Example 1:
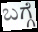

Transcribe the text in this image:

ಬಗ್ಗೆ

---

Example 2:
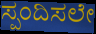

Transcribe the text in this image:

ಸ್ಪಂದಿಸಲೇ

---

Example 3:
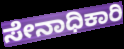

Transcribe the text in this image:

ಸೇನಾಧಿಕಾರಿ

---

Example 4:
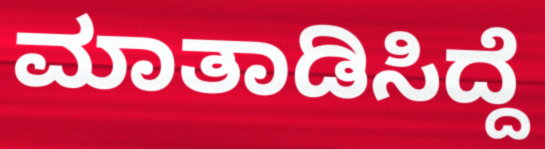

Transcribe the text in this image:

ಮಾತಾಡಿಸಿದ್ದೆ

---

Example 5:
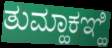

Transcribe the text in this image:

ತುಮ್ಹಾಕಞ್ಹಿ